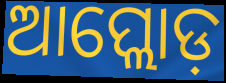
ଆପ୍ଲୋଡ଼